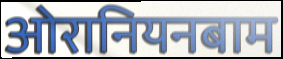
ओरानियनबाम